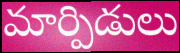
మార్పిడులు